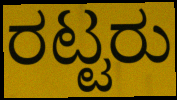
ರಟ್ಟರು